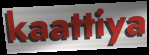
kaattiya